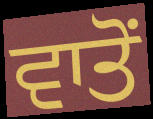
ਵਾਤੋਂ